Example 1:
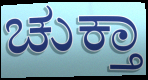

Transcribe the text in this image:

ಚುಕ್ತಾ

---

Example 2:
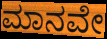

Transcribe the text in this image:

ಮಾನವೇ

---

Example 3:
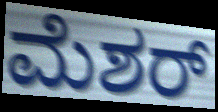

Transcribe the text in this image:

ಮೆಶರ್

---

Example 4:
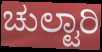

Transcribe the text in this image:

ಚುಲ್ಟಾರಿ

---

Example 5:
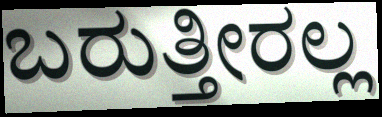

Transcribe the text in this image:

ಬರುತ್ತೀರಲ್ಲ